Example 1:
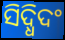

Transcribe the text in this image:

ସିଦ୍ଧିଦଂ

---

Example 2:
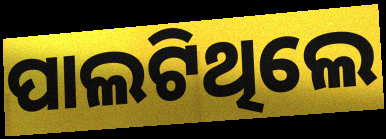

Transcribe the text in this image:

ପାଲଟିଥିଲେ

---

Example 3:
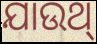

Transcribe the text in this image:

ଯାଉଥ୍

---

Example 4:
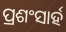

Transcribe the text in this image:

ପ୍ରଶଂସାର୍ହ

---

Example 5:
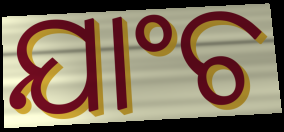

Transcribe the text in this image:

ଯାଂଚ